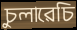
চুলাৱেচি